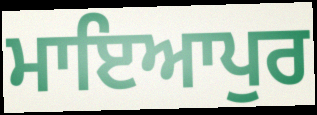
ਮਾਇਆਪੁਰ